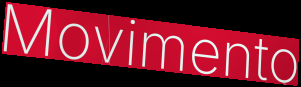
Movimento